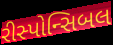
રીસ્પોન્સિબલ